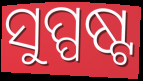
ସୁପ୍ପଷ୍ଟ